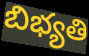
బిభ్యతి